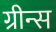
ग्रीन्स